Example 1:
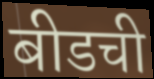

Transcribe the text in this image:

बीडची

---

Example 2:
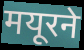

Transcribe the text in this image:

मयूरने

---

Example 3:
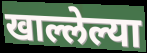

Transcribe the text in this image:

खाल्लेल्या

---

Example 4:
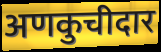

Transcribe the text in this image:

अणकुचीदार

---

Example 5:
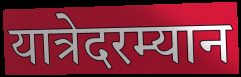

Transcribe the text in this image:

यात्रेदरम्यान